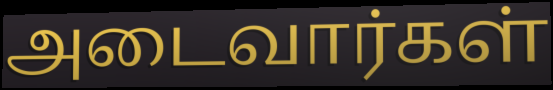
அடைவார்கள்